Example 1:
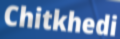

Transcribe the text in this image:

Chitkhedi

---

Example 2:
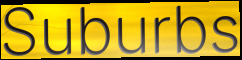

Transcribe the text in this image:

Suburbs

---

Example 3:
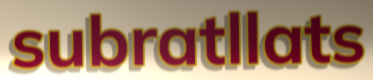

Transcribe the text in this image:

subratllats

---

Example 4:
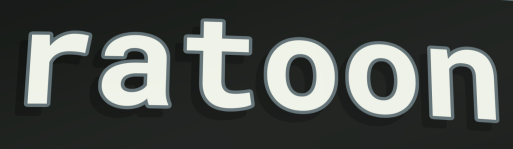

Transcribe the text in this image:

ratoon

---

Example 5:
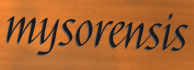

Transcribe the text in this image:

mysorensis